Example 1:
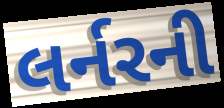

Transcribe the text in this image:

લર્નરની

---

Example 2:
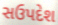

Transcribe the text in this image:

સઉપદેશ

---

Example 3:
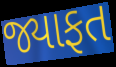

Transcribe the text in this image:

જ્યાફત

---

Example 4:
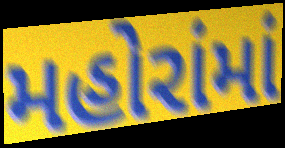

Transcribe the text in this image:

મહોરાંમાં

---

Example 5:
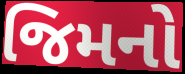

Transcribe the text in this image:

જિમનો